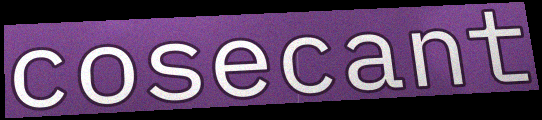
cosecant